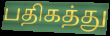
பதிகத்து